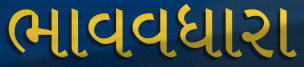
ભાવવધારા